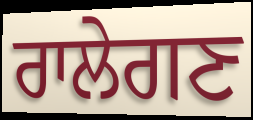
ਰਾਲੇਗਣ